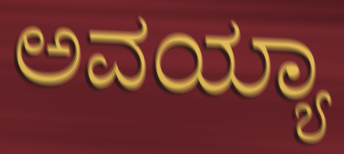
ಅವಯ್ಯಾ